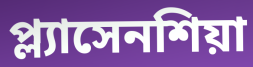
প্ল্যাসেনশিয়া